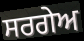
ਸਰਗੇਅ